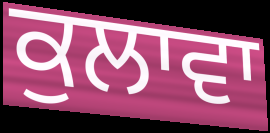
ਕੁਲਾਵਾ